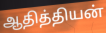
ஆதித்தியன்